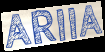
ARIIA